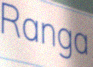
Ranga